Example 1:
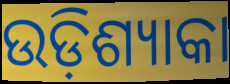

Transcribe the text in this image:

ଉଡ଼ିଶ୍ୟାକା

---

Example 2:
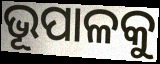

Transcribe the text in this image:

ଭୂପାଳକୁ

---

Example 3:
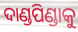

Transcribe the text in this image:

ଦାଣ୍ଡପିଣ୍ଡାକୁ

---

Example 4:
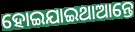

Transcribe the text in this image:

ହୋଇଯାଇଥାଆନ୍ତେ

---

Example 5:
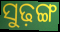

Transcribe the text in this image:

ସୁଢ଼ଙ୍ଗ